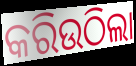
କରିଉଠିଲା